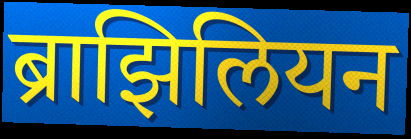
ब्राझिलियन